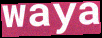
waya